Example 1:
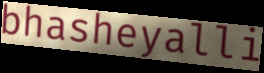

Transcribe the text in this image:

bhasheyalli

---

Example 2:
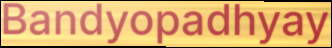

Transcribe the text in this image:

Bandyopadhyay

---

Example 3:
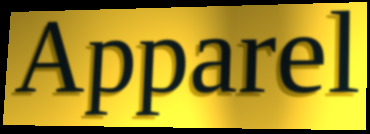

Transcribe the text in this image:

Apparel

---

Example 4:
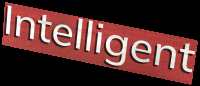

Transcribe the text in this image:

Intelligent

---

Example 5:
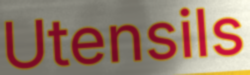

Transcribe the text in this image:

Utensils